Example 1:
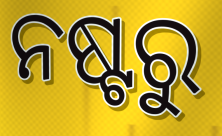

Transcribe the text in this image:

ନଷ୍ଟରୁ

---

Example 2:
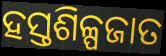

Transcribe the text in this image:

ହସ୍ତଶିଳ୍ପଜାତ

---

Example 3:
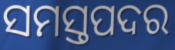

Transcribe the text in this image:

ସମସ୍ତପଦର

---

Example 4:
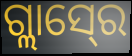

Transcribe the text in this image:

ଗ୍ଲାସ୍‍ରେ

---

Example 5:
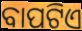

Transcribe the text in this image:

ବାପଟିଏ